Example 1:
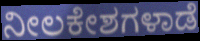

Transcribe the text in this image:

ನೀಲಕೇಶಗಳಾಡೆ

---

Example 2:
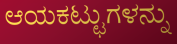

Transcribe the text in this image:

ಆಯಕಟ್ಟುಗಳನ್ನು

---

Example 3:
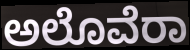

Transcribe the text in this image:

ಅಲೊವೆರಾ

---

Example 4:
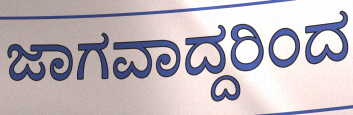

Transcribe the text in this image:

ಜಾಗವಾದ್ದರಿಂದ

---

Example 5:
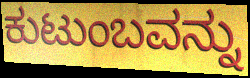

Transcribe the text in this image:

ಕುಟುಂಬವನ್ನು